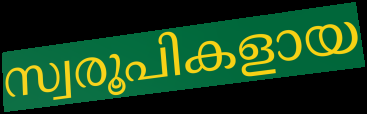
സ്വരൂപികളായ